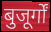
बुजूर्गों